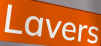
Lavers